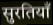
सुरतियाँ